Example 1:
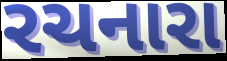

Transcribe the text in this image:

રચનારા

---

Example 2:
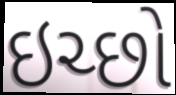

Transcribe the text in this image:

ઇચ્છો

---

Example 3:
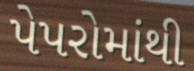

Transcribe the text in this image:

પેપરોમાંથી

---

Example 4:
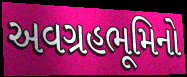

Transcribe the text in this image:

અવગ્રહભૂમિનો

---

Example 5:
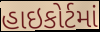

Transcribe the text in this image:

હાઇકોર્ટમાં